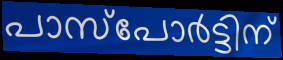
പാസ്പോർട്ടിന്